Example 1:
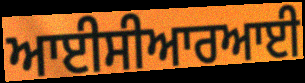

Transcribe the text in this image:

ਆਈਸੀਆਰਆਈ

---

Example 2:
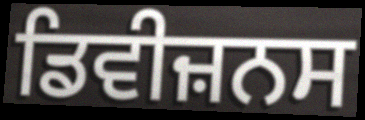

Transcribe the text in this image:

ਡਿਵੀਜ਼ਨਸ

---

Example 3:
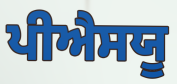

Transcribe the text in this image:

ਪੀਐਸਯੂ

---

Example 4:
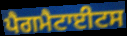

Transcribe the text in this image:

ਪੈਗਮੈਟਾਈਟਸ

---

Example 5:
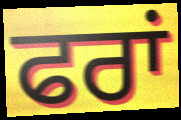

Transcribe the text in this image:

ਫਰਾਂ